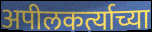
अपीलकर्त्याच्या